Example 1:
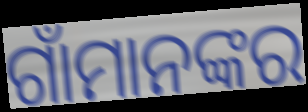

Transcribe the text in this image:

ଗାଁମାନଙ୍କର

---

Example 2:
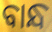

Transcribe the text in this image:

ବାନ୍ଧ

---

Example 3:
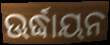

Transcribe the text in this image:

ଊର୍ଦ୍ଧାୟନ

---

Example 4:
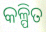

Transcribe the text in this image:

କଳ୍ପିତ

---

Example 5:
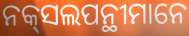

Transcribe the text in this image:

ନକ୍‌ସଲପନ୍ଥୀମାନେ